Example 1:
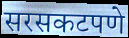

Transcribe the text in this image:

सरसकटपणे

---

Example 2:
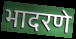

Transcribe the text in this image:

भादरणे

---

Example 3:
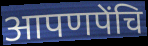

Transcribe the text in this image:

आपणपेंचि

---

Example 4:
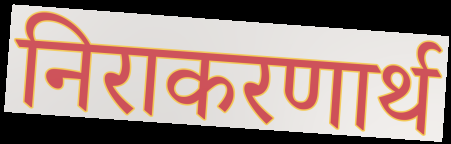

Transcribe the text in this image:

निराकरणार्थ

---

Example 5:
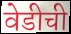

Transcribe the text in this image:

वेडीची